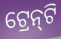
ଟ୍ରେନ୍‌ଟି